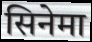
सिनेमा